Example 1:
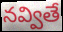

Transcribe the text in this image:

నవ్వితే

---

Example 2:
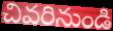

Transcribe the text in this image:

చివరినుండి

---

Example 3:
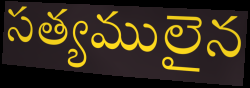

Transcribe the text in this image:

సత్యములైన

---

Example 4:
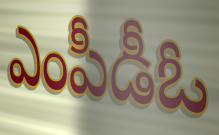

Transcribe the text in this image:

ఎంపీడీఓ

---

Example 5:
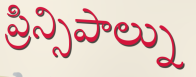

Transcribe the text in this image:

ప్రిన్సిపాల్ను